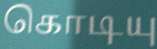
கொடியு